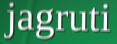
jagruti